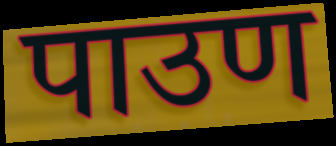
पाउण